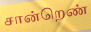
சான்றெண்